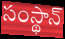
సంస్థాన్